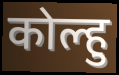
कोल्हु